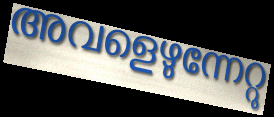
അവളെഴുന്നേറ്റു